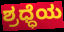
ಶ್ರಧ್ಧೆಯ